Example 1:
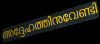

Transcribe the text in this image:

അദ്ദേഹത്തിനുവേണ്ടി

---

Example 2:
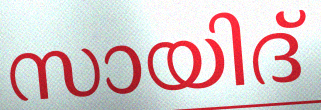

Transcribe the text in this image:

സായിദ്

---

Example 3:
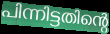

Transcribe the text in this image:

പിന്നിട്ടതിന്റെ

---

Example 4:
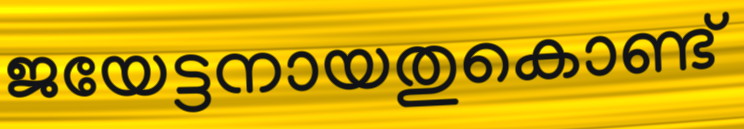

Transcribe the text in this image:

ജയേട്ടനായതുകൊണ്ട്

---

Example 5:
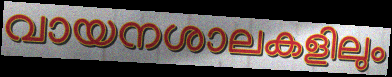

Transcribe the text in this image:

വായനശാലകളിലും